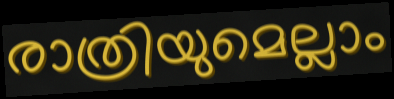
രാത്രിയുമെല്ലാം